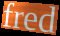
fred